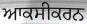
ਆਕਸੀਕਰਨ